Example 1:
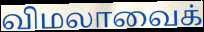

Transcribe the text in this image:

விமலாவைக்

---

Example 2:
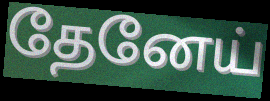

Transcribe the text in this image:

தேனேய்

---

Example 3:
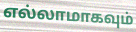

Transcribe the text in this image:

எல்லாமாகவும்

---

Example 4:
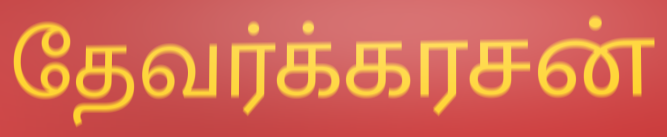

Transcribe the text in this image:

தேவர்க்கரசன்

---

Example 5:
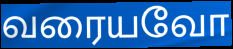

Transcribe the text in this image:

வரையவோ